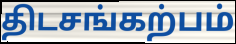
திடசங்கற்பம்